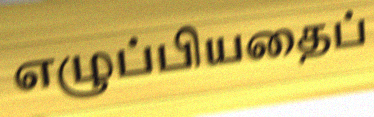
எழுப்பியதைப்